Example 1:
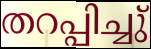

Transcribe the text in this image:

തറപ്പിച്ചു്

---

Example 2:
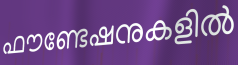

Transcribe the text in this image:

ഫൗണ്ടേഷനുകളിൽ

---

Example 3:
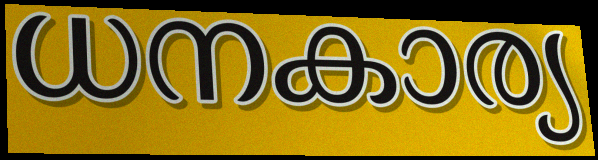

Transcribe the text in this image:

ധനകാര്യ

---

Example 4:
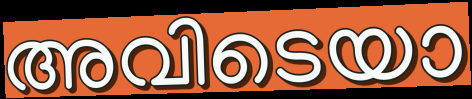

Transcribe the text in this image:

അവിടെയാ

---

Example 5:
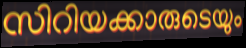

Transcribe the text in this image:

സിറിയക്കാരുടെയും